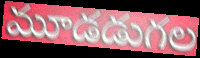
మూడడుగల